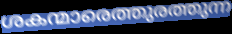
ശകന്മാരെത്തുരത്തുന്ന